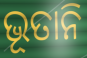
ଭୂତାନି